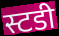
स्टडी